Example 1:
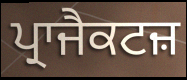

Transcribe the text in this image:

ਪ੍ਰਾਜੈਕਟਜ਼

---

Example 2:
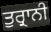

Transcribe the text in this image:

ਤੁਰ੍ਰਾਨੀ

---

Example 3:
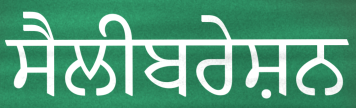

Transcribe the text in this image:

ਸੈਲੀਬਰੇਸ਼ਨ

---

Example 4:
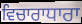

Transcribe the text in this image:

ਵਿਚਾਰਾਧਾਰਾ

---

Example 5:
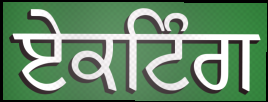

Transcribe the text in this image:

ਏਕਟਿੰਗ